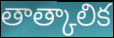
తాత్కాలిక